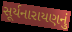
સૂર્યનારાયણનું